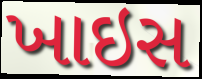
ખાઇસ